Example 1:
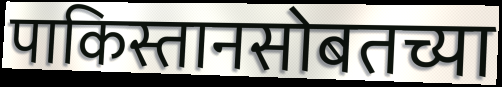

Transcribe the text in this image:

पाकिस्तानसोबतच्या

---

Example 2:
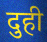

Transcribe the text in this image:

दुही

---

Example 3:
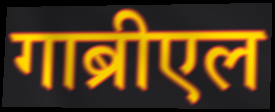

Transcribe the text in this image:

गाब्रीएल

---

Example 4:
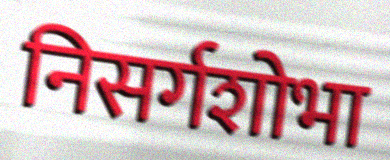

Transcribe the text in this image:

निसर्गशोभा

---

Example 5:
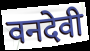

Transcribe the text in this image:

वनदेवी